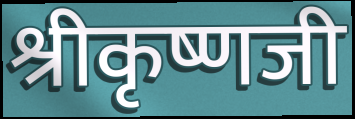
श्रीकृष्णजी